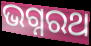
ଭଗ୍ନରଥ